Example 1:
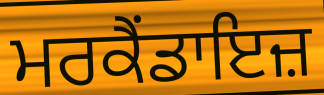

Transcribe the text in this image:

ਮਰਕੈਂਡਾਇਜ਼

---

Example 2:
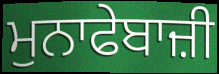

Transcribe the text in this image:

ਮੁਨਾਫੇਬਾਜ਼ੀ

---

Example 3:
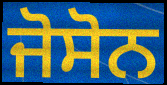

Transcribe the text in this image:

ਜੋਸੋਨ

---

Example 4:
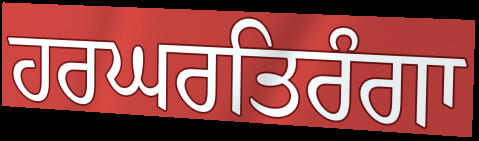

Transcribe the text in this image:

ਹਰਘਰਤਿਰੰਗਾ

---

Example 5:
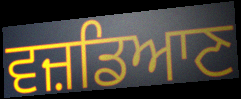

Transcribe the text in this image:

ਵਜ਼ਡਿਆਣ